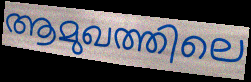
ആമുഖത്തിലെ